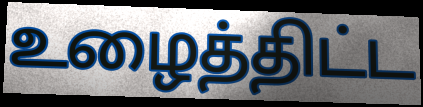
உழைத்திட்ட